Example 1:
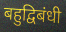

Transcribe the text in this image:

बहुद्विबंधी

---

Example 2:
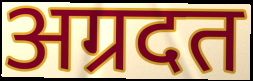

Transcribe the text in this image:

अग्रदत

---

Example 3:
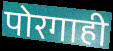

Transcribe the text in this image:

पोरगाही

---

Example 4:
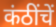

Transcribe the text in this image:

कंठींचें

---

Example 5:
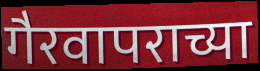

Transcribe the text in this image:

गैरवापराच्या